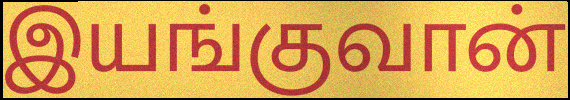
இயங்குவான்